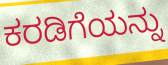
ಕರಡಿಗೆಯನ್ನು